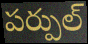
పర్పుల్